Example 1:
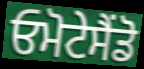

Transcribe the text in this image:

ਓਮੋਟੇਸੈਂਡੋ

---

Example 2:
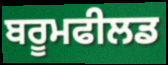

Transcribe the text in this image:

ਬਰੂਮਫੀਲਡ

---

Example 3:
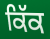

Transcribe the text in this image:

ਕਿੱਕ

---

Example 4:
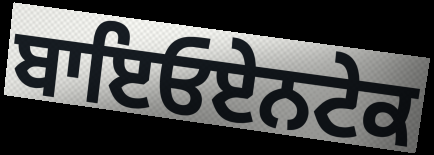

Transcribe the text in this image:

ਬਾਇਓਏਨਟੇਕ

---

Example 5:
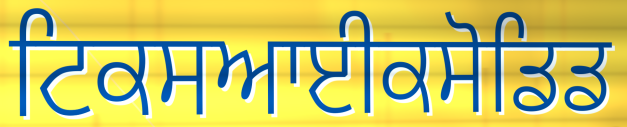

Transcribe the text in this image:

ਟਿਕਸਆਈਕਸੋਡਿਡ